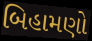
બિહામણો